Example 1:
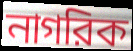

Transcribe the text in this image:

নাগরিক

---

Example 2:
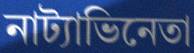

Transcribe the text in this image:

নাট্যাভিনেতা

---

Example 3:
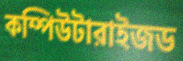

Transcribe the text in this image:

কম্পিউটারাইজড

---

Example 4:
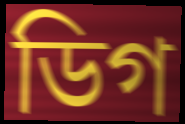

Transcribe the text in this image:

ডিগ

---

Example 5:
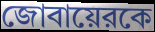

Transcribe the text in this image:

জোবায়েরকে